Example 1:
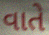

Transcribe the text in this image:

વાતે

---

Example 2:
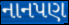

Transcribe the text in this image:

નાનપણ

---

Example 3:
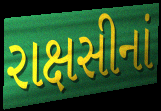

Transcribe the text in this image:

રાક્ષસીનાં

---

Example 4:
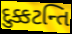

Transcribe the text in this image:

દુક્કટન્તિ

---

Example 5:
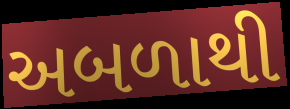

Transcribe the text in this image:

અબળાથી